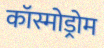
कॉस्मोड्रोम